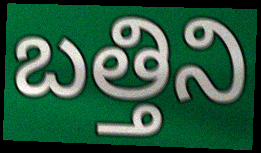
బత్తిని